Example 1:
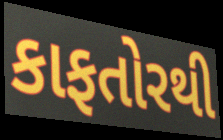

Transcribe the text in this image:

કાફતોરથી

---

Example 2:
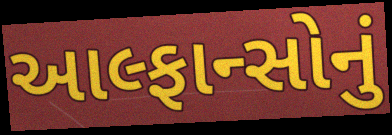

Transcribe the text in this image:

આલ્ફાન્સોનું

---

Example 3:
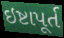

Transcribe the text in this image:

ઇષ્ટાપૂર્ત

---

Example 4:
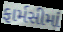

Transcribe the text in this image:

ફાર્મસીમાં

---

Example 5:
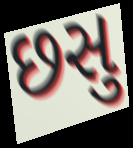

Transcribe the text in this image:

છસુ